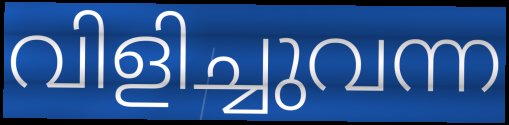
വിളിച്ചുവന്ന